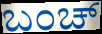
ಬಂಚ್